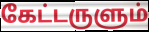
கேட்டருளும்